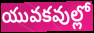
యువకవుల్లో